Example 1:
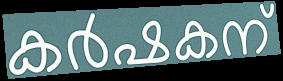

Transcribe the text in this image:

കർഷകന്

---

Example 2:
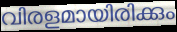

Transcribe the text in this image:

വിരളമായിരിക്കും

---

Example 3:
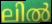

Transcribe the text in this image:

ലിൽ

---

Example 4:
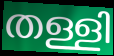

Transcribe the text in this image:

തള്ളി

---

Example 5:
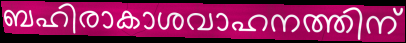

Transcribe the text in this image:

ബഹിരാകാശവാഹനത്തിന്